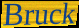
Bruck